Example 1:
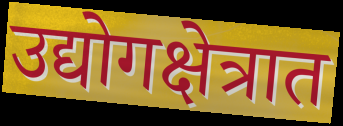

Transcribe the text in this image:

उद्योगक्षेत्रात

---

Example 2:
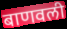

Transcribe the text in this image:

बाणवली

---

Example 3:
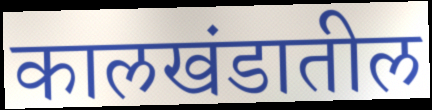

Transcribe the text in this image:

कालखंडातील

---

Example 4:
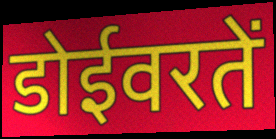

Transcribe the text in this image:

डोईवरतें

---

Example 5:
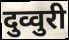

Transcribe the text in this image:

दुव्वुरी